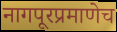
नागपूरप्रमाणेच